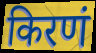
किरणं